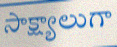
సాక్ష్యాలుగా